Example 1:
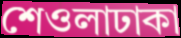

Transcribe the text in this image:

শেওলাঢাকা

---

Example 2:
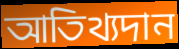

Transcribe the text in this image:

আতিথ্যদান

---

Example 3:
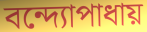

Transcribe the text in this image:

বন্দ্যোপাধায়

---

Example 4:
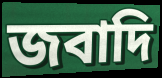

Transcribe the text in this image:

জবাদি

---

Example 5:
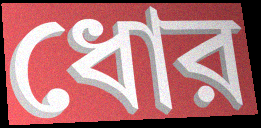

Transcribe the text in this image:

ধোর